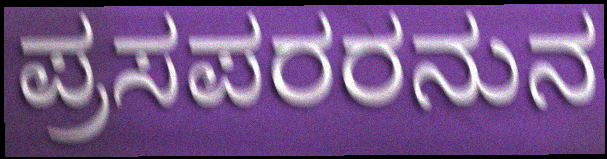
ಪ್ರಸಪರರನುನ